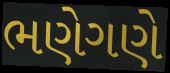
ભણેગણે